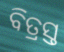
ବିତ୍ରସ୍ତ